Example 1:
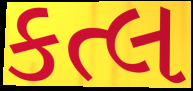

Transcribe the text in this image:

કત્લ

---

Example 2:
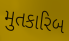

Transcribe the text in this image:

મુતકારિબ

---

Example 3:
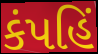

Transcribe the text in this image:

કંપહિં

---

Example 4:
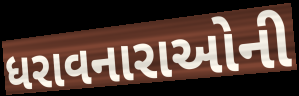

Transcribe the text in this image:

ધરાવનારાઓની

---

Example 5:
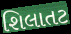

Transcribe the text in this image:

શિલાતટ